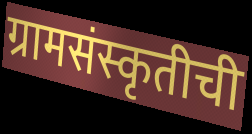
ग्रामसंस्कृतीची